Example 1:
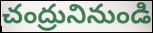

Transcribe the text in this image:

చంద్రునినుండి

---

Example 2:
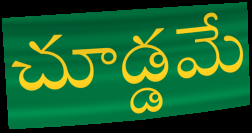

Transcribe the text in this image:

చూడ్డమే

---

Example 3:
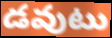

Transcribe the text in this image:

డవుటు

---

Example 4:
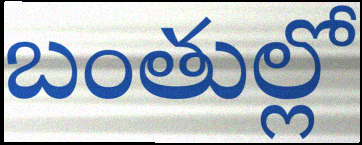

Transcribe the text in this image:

బంతుల్లో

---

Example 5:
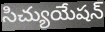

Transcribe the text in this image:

సిచ్యుయేషన్